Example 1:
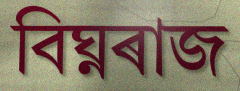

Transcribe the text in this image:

বিঘ্নৰাজ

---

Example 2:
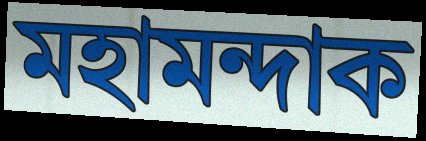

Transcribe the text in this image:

মহামন্দাক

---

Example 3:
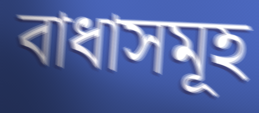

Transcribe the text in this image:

বাধাসমূহ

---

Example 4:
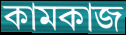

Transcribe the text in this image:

কামকাজ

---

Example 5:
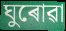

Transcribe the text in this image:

ঘুৰোৱা